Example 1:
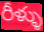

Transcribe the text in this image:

రీళ్ళు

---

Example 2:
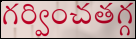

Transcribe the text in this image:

గర్వించతగ్గ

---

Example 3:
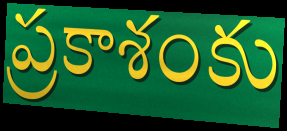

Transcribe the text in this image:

ప్రకాశంకు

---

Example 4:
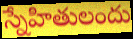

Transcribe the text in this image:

స్నేహితులందు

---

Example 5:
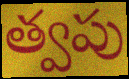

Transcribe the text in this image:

త్వపు